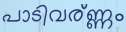
പാടിവര്ണ്ണം